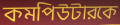
কমপিউটারকে